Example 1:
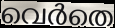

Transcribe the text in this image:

വെർതെ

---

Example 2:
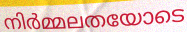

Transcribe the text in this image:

നിർമ്മലതയോടെ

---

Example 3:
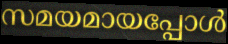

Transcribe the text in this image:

സമയമായപ്പോൾ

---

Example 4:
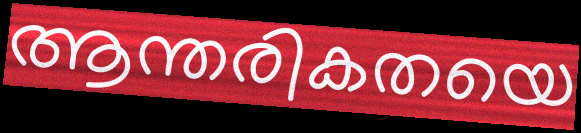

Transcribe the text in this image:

ആന്തരികതയെ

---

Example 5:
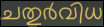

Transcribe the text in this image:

ചതുർവിധ